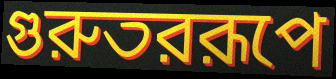
গুরুতররূপে